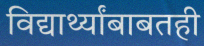
विद्यार्थ्यांबाबतही